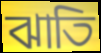
ঝাতি